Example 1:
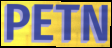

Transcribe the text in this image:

PETN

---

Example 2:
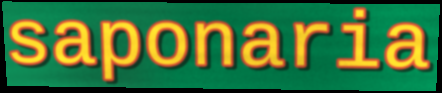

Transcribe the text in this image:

saponaria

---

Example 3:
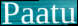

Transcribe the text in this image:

Paatu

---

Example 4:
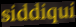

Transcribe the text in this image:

siddiqui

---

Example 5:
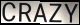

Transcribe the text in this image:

CRAZY